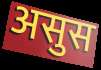
असुस